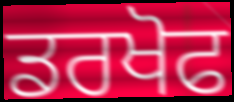
ਡਰਖੋਫ